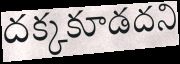
దక్కకూడదని